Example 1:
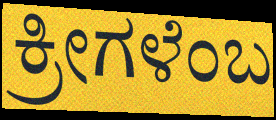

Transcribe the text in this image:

ಕ್ರೀಗಳೆಂಬ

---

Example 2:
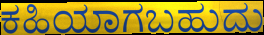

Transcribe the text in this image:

ಕಹಿಯಾಗಬಹುದು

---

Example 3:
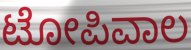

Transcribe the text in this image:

ಟೋಪಿವಾಲ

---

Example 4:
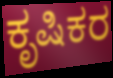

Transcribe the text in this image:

ಕೃಷಿಕರ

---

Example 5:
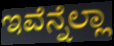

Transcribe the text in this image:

ಇವೆನ್ನೆಲ್ಲಾ